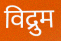
विद्रुम